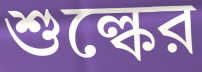
শুল্কের